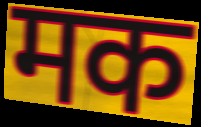
मक